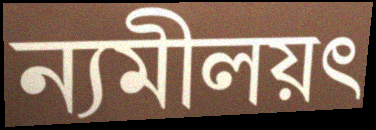
ন্যমীলয়ৎ